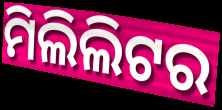
ମିଲିଲିଟର